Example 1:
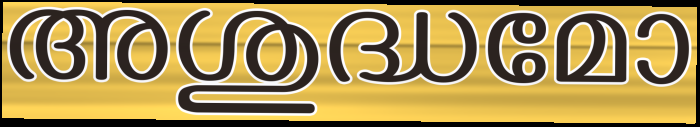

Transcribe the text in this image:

അശുദ്ധമോ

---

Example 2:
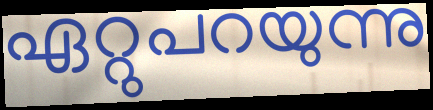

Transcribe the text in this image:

ഏറ്റുപറയുന്നു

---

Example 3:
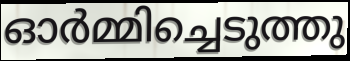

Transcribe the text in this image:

ഓർമ്മിച്ചെടുത്തു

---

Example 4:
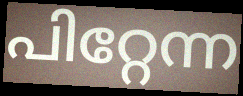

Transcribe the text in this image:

പിറ്റേന്ന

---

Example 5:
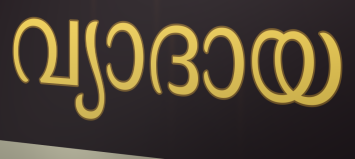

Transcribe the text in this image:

വ്യാദായ